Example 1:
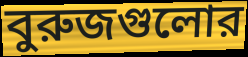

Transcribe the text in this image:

বুরুজগুলোর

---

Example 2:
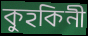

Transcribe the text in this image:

কুহকিনী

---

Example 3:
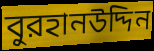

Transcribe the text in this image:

বুরহানউদ্দিন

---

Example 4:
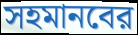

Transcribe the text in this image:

সহমানবের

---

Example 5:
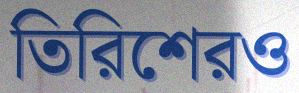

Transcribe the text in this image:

তিরিশেরও